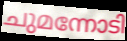
ചുമന്നോടി